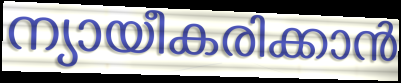
ന്യായീകരിക്കാൻ